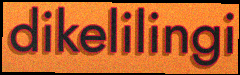
dikelilingi